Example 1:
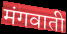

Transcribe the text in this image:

मंगवाती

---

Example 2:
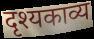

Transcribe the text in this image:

दृश्यकाव्य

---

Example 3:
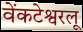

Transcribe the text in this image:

वेंकटेश्वरलू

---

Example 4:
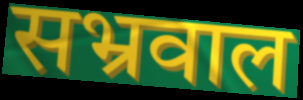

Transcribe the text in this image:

सभ्रवाल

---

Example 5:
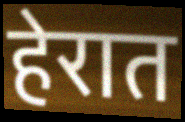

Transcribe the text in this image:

हेरात